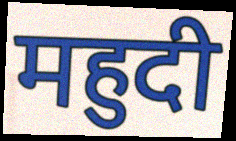
महुदी